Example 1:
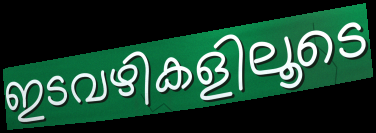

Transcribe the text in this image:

ഇടവഴികളിലൂടെ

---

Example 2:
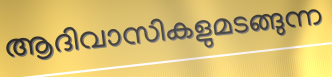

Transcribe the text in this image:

ആദിവാസികളുമടങ്ങുന്ന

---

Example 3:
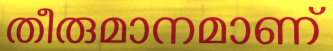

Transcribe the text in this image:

തീരുമാനമാണ്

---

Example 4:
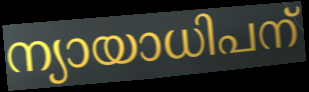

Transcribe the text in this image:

ന്യായാധിപന്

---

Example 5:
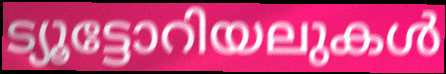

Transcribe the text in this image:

ട്യൂട്ടോറിയലുകൾ